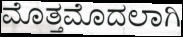
ಮೊತ್ತಮೊದಲಾಗಿ